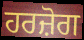
ਹਰਜ਼ੋਗ